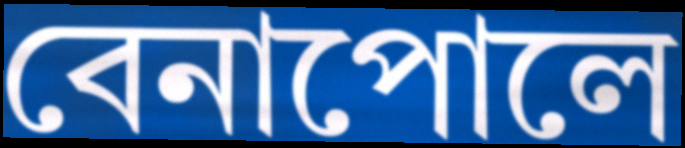
বেনাপোলে